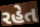
રહેત